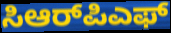
ಸಿಆರ್‌ಪಿಎಫ್